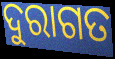
ଦୁରାଗତ